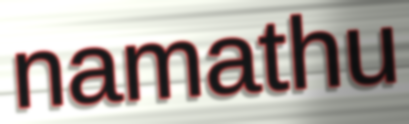
namathu